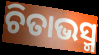
ଚିତାଭସ୍ମ